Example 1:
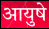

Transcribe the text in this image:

आयुषे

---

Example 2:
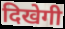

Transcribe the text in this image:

दिखेगी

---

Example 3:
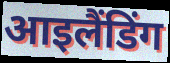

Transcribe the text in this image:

आइलैंडिंग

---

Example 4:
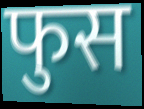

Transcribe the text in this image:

फुस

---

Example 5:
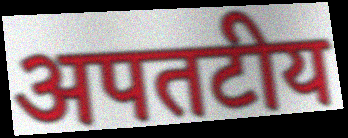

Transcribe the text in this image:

अपतटीय